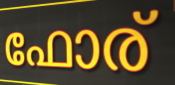
ഫോര്